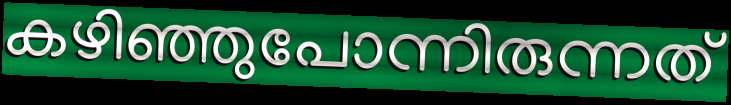
കഴിഞ്ഞുപോന്നിരുന്നത്